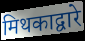
मिथकाद्वारे